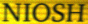
NIOSH